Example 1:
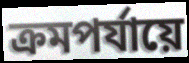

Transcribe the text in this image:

ক্রমপর্যায়ে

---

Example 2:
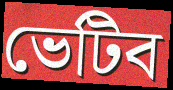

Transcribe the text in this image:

ভেটিব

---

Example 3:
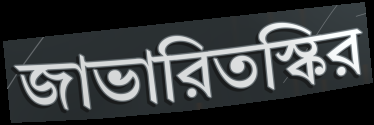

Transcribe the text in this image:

জাভারিতস্কির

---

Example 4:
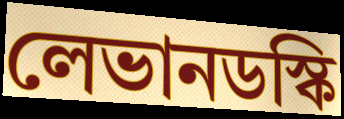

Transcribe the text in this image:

লেভানডস্কি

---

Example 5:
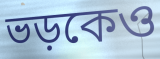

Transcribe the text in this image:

ভড়কেও